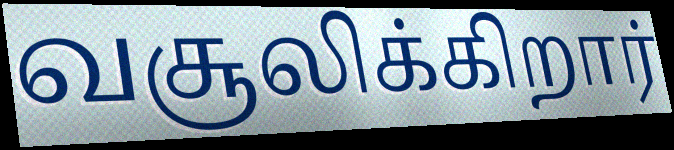
வசூலிக்கிறார்